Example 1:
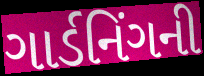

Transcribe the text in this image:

ગાર્ડનિંગની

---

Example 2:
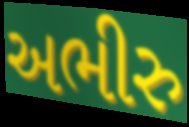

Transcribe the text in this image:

અભીરુ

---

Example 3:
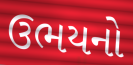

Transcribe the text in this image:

ઉભયનો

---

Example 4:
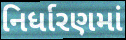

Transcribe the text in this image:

નિર્ધારણમાં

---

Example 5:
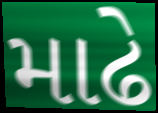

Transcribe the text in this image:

માઢે